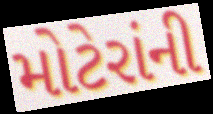
મોટેરાંની